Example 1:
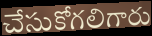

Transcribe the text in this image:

చేసుకోగలిగారు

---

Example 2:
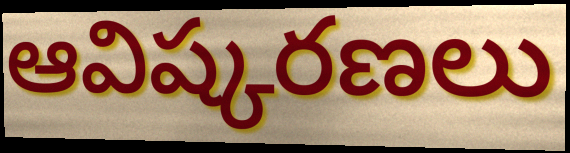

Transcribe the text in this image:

ఆవిష్కరణలు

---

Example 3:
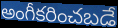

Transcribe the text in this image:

అంగీకరించబడే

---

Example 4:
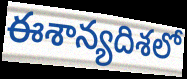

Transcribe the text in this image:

ఈశాన్యదిశలో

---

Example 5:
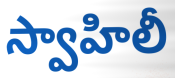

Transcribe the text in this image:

స్వాహిలీ